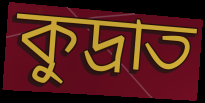
কুদ্রাত